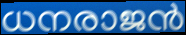
ധനരാജൻ